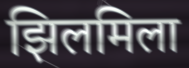
झिलमिला